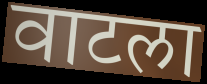
वाटला